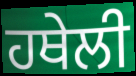
ਹਥੇਲੀ